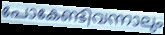
പോകേണ്ടിവന്നാലും